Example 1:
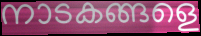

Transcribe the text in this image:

നാടകങ്ങളെ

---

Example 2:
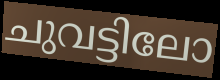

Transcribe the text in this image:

ചുവട്ടിലോ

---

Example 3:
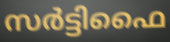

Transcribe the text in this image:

സർട്ടിഫൈ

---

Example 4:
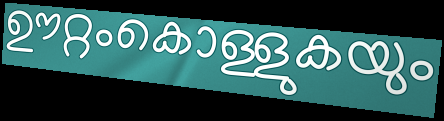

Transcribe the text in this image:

ഊറ്റംകൊള്ളുകയും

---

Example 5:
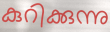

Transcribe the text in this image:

കുറിക്കുന്നു